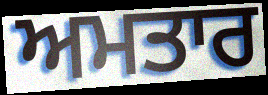
ਅਮਤਾਰ